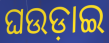
ଘଉଡ଼ାଇ